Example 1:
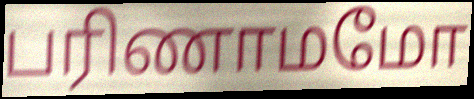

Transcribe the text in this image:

பரிணாமமோ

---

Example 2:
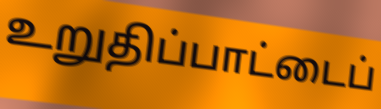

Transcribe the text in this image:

உறுதிப்பாட்டைப்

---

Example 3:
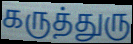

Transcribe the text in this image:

கருத்துரு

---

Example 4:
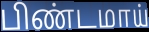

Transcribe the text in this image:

பிண்டமாய்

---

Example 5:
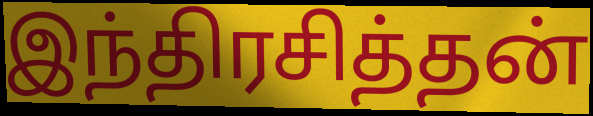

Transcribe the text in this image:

இந்திரசித்தன்